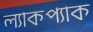
ল্যাকপ্যাক